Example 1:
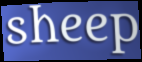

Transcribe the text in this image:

sheep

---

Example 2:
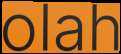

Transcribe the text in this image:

olah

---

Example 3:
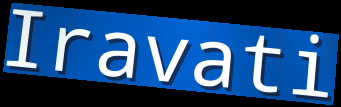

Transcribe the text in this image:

Iravati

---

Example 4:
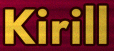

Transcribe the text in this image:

Kirill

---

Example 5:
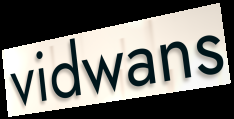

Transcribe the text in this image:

vidwans